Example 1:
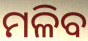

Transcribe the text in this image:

ମଳିବ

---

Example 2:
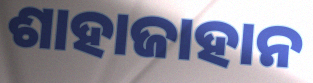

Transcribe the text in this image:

ଶାହାଜାହାନ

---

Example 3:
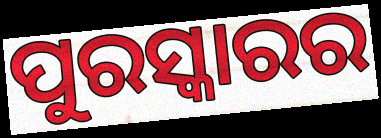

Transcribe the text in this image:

ପୁରସ୍କାରର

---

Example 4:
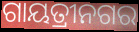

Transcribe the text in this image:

ଗାୟତ୍ରୀନଗର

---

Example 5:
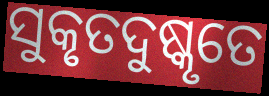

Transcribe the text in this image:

ସୁକୃତଦୁଷ୍କୃତେ